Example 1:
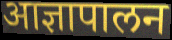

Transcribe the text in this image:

आज्ञापालन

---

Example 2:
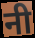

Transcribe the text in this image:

नी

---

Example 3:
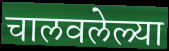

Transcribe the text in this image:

चालवलेल्या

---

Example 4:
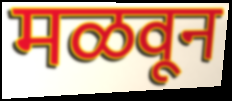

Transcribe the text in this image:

मळवून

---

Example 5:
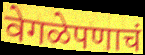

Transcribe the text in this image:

वेगळेपणाचं